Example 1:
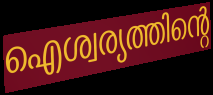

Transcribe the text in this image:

ഐശ്വര്യത്തിന്റെ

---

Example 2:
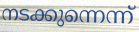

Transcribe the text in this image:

നടക്കുന്നെന്ന്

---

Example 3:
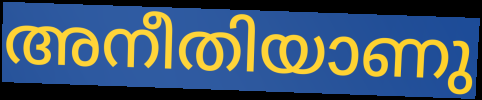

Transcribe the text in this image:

അനീതിയാണു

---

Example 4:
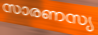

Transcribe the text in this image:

സാരണസ്യ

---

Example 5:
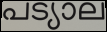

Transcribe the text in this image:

പട്യാല